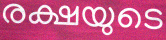
രക്ഷയുടെ